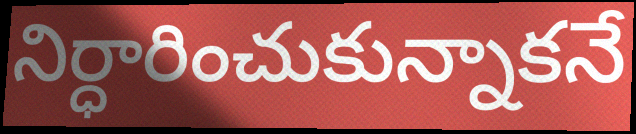
నిర్ధారించుకున్నాకనే